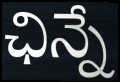
ఛిన్నే